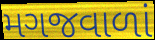
મગજવાળાં